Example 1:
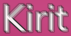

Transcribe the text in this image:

Kirit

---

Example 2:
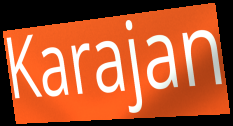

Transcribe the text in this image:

Karajan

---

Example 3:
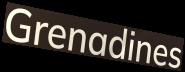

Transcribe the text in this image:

Grenadines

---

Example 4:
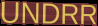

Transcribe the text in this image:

UNDRR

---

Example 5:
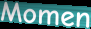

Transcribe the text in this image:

Momen